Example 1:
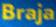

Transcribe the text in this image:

Braja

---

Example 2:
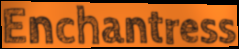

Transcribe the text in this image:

Enchantress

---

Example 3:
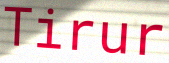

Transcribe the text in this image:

Tirur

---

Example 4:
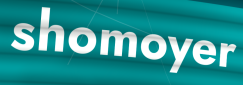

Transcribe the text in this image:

shomoyer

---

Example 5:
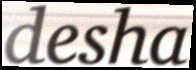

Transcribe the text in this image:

desha